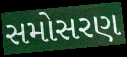
સમોસરણ